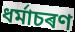
ধৰ্মাচৰণ